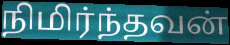
நிமிர்ந்தவன்